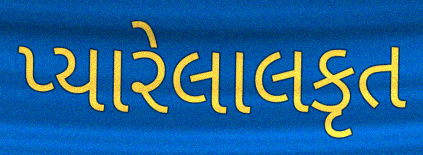
પ્યારેલાલકૃત